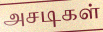
அசடிகள்